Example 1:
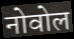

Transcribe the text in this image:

नोवोल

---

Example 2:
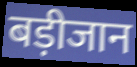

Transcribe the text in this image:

बड़ीजान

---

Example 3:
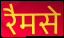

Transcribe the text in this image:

रैमसे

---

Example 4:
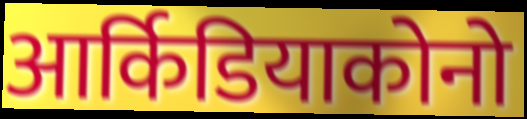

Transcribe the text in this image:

आर्किडियाकोनो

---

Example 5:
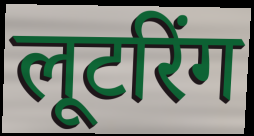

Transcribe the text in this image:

लूटरिंग